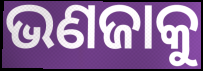
ଭଣଜାକୁ